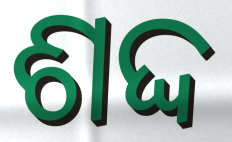
ଶଦ୍ଦ